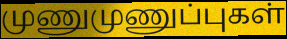
முணுமுணுப்புகள்